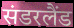
संडरलैंड